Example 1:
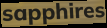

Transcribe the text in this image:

sapphires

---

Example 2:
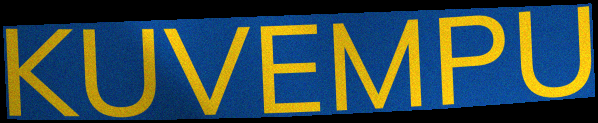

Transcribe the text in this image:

KUVEMPU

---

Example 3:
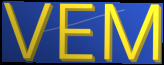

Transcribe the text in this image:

VEM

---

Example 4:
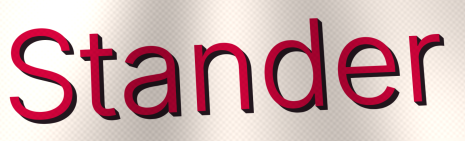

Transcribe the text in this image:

Stander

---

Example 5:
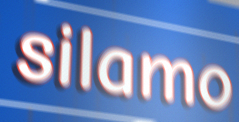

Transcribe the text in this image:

silamo